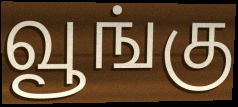
வூங்கு